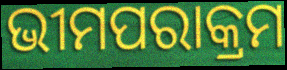
ଭୀମପରାକ୍ରମ